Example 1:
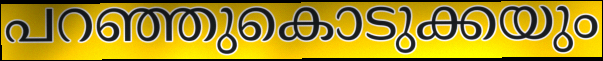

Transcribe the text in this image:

പറഞ്ഞുകൊടുക്കയും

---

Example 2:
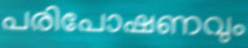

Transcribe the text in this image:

പരിപോഷണവും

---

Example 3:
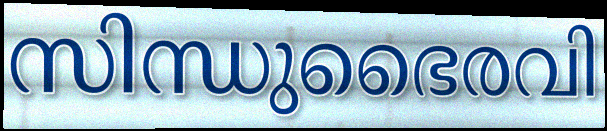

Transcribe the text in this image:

സിന്ധുഭൈരവി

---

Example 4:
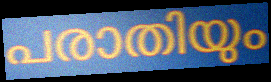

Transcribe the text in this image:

പരാതിയും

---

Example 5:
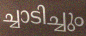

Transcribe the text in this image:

ച്ചാടിച്ചും